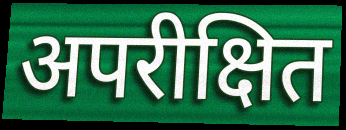
अपरीक्षित